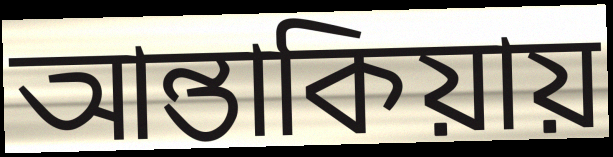
আন্তাকিয়ায়